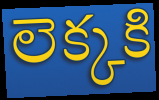
లెక్కకి